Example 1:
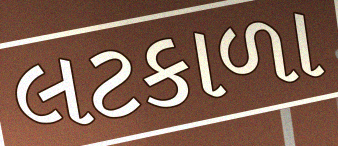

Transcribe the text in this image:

લટકાળા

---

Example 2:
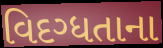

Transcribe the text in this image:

વિદગ્ધતાના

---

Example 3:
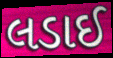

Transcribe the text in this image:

લડાઈ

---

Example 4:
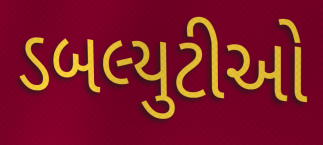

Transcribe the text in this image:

ડબલ્યુટીઓ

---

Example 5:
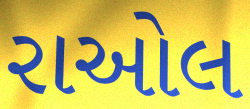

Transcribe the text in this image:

રાઓલ